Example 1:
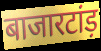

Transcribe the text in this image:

बाजारटांड़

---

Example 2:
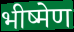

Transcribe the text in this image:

भीष्मेण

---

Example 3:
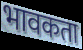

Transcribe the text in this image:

भावकता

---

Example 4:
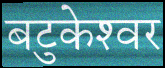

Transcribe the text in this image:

बटुकेश्‍वर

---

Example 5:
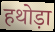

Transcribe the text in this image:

हथोड़ा